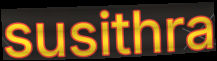
susithra